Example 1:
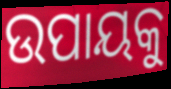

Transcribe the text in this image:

ଉପାୟକୁ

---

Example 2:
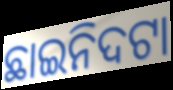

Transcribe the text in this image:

ଛାଇନିଦଟା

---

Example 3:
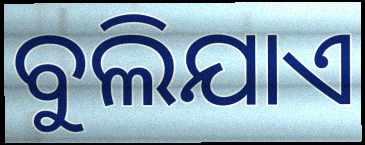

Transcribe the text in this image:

ବୁଲିଯାଏ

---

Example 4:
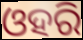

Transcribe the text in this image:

ଓହରି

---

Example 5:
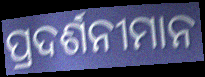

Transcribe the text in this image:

ପ୍ରଦର୍ଶନୀମାନ